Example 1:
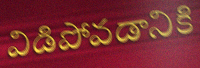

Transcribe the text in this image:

విడిపోవడానికి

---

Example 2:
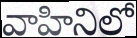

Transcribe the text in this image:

వాహినిలో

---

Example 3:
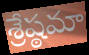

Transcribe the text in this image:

శ్రేష్ఠమా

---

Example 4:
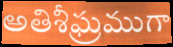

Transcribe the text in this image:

అతిశీఘ్రముగా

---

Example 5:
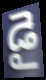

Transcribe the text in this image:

డై